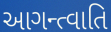
આગન્ત્વાતિ